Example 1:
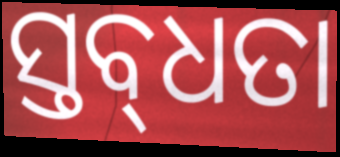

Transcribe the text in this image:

ସ୍ତବ୍‍ଧତା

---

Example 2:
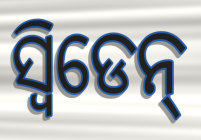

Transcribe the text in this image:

ସ୍ଵିଡେନ୍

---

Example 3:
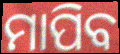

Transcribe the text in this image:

ମାପିବ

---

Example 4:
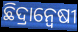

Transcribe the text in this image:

ଛିଦ୍ରାନ୍ୱେଷୀ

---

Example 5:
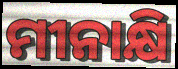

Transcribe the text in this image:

ମୀନାକ୍ଷି